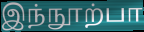
இந்நூற்பா